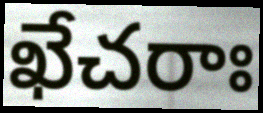
ఖేచరాః